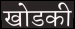
खोडकी